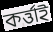
কৰ্ত্তাই